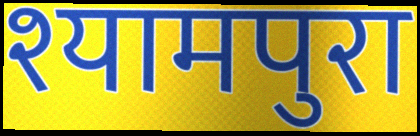
श्यामपुरा